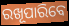
ରଖୂପାରିବେ